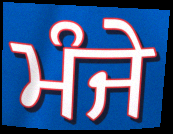
ਮੰਜੇ